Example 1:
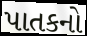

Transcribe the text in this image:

પાતકનો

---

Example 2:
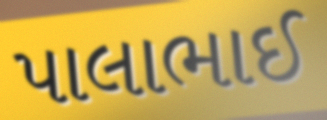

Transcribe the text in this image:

પાલાભાઈ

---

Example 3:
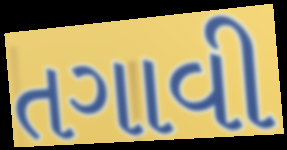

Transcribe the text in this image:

તગાવી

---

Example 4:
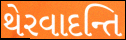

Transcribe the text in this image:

થેરવાદન્તિ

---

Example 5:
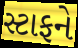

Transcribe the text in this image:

સ્ટાફને